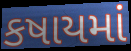
કષાયમાં